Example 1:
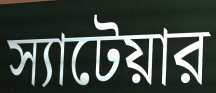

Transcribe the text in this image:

স্যাটেয়ার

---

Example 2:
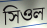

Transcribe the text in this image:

সিওল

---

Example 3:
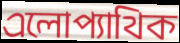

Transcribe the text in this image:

এলোপ্যাথিক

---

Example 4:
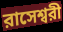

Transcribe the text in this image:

রাসেশ্বরী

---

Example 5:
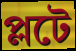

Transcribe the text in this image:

প্লটে